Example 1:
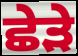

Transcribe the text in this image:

ਛੇੜੇ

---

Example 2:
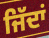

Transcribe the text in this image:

ਜਿੱਦਾਂ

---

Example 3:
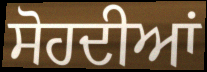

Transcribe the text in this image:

ਸੋਹਦੀਆਂ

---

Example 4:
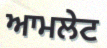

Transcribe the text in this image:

ਆਮਲੇਟ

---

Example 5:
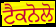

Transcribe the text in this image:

ਟੈਕਨੋਲੋ